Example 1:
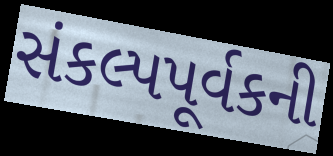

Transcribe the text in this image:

સંકલ્પપૂર્વકની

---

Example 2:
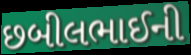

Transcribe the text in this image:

છબીલભાઈની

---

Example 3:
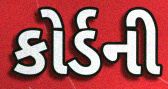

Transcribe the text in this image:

કોર્ડની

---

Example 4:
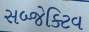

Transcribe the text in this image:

સબ્જેક્ટિવ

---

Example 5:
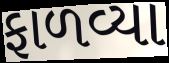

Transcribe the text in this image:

ફાળવ્યા